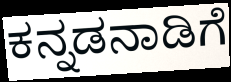
ಕನ್ನಡನಾಡಿಗೆ